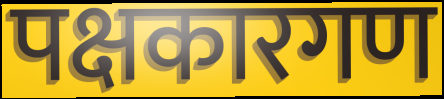
पक्षकारगण